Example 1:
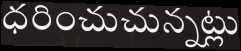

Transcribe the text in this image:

ధరించుచున్నట్లు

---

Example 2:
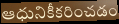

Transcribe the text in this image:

ఆధునికీకరించడం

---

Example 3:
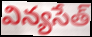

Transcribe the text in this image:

విన్యసేత్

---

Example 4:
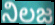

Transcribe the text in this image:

నిలజ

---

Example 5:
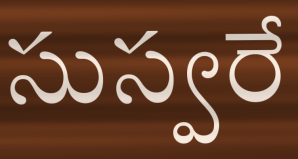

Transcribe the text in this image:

సుస్వరే